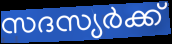
സദസ്യർക്ക്